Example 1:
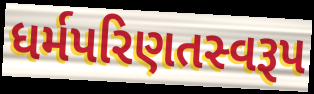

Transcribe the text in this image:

ધર્મપરિણતસ્વરૂપ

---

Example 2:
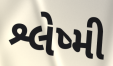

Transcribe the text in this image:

શ્લેષ્મી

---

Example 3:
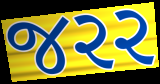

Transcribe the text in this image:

જરર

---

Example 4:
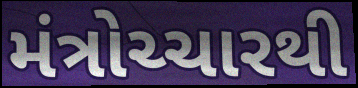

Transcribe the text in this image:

મંત્રોચ્ચારથી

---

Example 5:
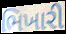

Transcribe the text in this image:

ભિખારી